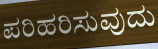
ಪರಿಹರಿಸುವುದು